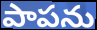
పాపను